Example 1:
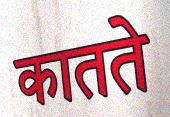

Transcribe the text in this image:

कातते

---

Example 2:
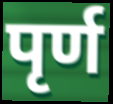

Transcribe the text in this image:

पृर्ण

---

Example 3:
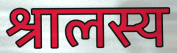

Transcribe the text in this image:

श्रालस्य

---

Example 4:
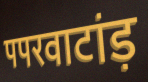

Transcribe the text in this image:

पपरवाटांड़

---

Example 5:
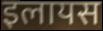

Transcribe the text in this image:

इलायस